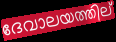
ദേവാലയത്തില്